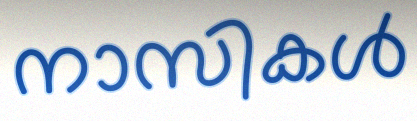
നാസികൾ